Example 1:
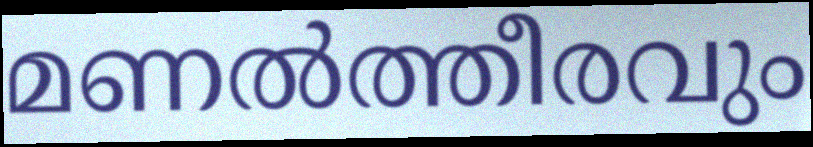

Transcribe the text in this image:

മണൽത്തീരവും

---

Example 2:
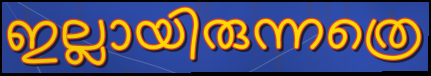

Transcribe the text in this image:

ഇല്ലായിരുന്നത്രെ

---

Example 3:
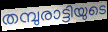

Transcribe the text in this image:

തമ്പുരാട്ടിയുടെ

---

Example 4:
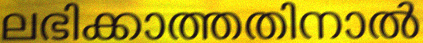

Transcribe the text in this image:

ലഭിക്കാത്തതിനാൽ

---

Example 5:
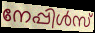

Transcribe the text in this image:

നേപ്പിൾസ്